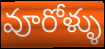
వూరోళ్ళు